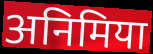
अनिमिया